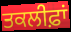
ਤਕਲੀਫ਼ਾਂ